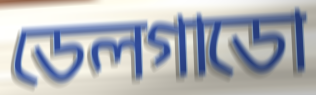
ডেলগাডো